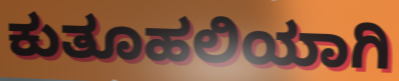
ಕುತೂಹಲಿಯಾಗಿ